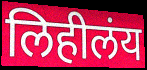
लिहीलंय